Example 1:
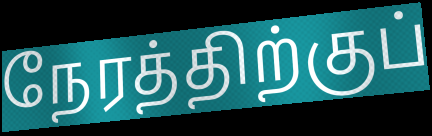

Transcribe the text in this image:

நேரத்திற்குப்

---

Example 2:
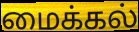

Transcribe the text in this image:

மைக்கல்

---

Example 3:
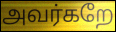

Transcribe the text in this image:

அவர்கறே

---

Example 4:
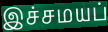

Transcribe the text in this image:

இச்சமயப்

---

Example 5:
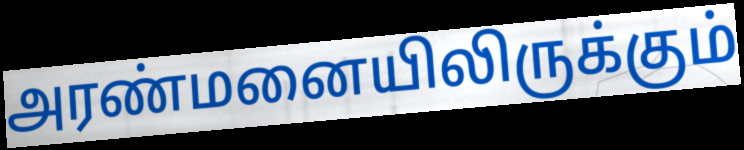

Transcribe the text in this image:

அரண்மனையிலிருக்கும்